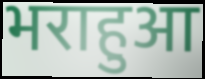
भराहुआ